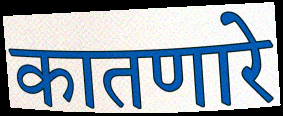
कातणारे